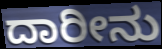
ದಾರೀನು